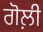
ਗੋਲ਼ੀ